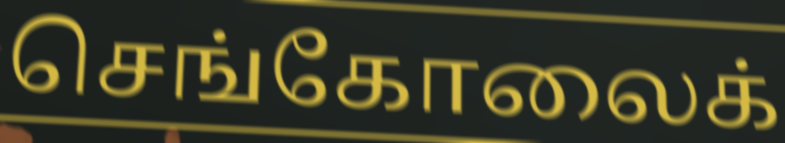
செங்கோலைக்